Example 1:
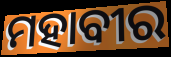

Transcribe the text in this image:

ମହାବୀର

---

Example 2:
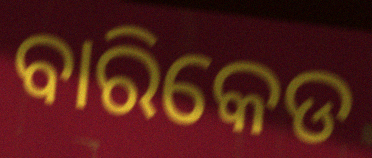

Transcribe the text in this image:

ବାରିକେଡ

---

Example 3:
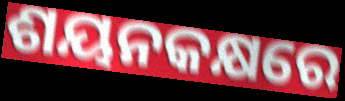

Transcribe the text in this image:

ଶୟନକକ୍ଷରେ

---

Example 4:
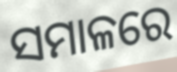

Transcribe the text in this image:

ସମାଳରେ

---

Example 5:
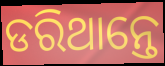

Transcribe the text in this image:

ଡରିଥାନ୍ତେ